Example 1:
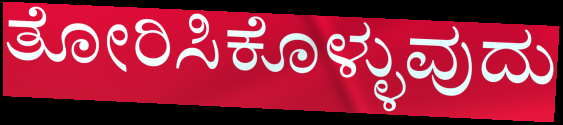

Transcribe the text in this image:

ತೋರಿಸಿಕೊಳ್ಳುವುದು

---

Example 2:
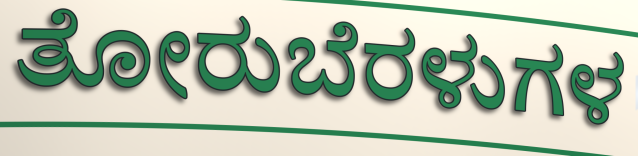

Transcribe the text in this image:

ತೋರುಬೆರಳುಗಳ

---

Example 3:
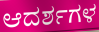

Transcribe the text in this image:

ಆದರ್ಶಗಳ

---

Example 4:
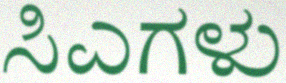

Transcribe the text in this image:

ಸಿಎಗಳು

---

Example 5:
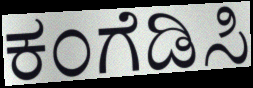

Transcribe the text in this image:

ಕಂಗೆಡಿಸಿ